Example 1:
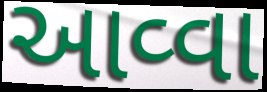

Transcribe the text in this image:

આવ્વા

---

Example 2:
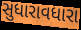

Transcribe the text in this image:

સુધારાવધારા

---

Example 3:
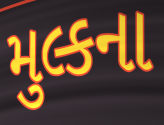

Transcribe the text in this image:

મુલ્કના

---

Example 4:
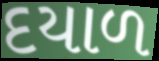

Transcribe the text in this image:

દયાળ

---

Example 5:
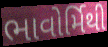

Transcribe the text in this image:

ભાવોર્મિથી